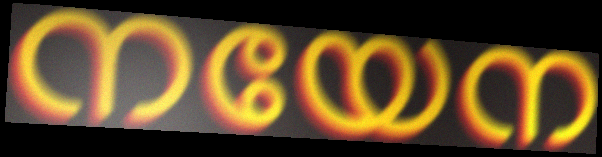
നയേന